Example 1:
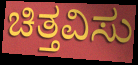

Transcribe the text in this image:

ಚಿತ್ತವಿಸು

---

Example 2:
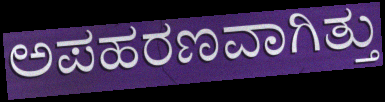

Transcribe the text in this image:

ಅಪಹರಣವಾಗಿತ್ತು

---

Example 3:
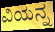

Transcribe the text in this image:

ವಿಯನ್ನ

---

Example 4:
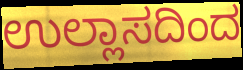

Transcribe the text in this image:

ಉಲ್ಲಾಸದಿಂದ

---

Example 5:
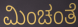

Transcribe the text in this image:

ಮಿಂಚಂತೆ